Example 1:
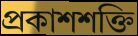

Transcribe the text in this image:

প্রকাশশক্তি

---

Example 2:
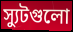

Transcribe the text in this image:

স্যুটগুলো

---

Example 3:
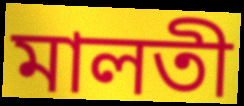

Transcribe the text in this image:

মালতী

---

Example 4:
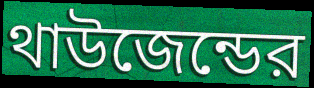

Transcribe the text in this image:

থাউজেন্ডের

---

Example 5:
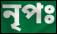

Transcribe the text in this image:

নৃপঃ